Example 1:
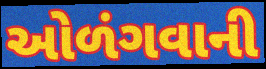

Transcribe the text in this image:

ઓળંગવાની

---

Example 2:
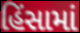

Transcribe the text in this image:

હિંસામાં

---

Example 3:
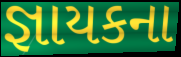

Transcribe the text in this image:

જ્ઞાયકના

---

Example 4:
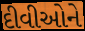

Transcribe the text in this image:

દીવીઓને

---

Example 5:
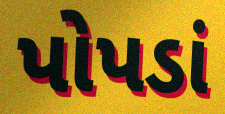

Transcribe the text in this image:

પોપડાં